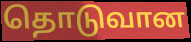
தொடுவான